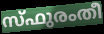
സ്ഫുരംതീ